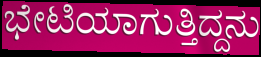
ಭೇಟಿಯಾಗುತ್ತಿದ್ದನು